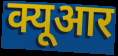
क्यूआर